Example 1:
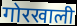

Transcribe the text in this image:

गोरखाली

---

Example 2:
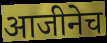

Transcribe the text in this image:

आजीनेच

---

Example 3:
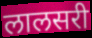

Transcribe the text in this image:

लालसरी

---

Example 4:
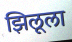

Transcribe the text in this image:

झिलूला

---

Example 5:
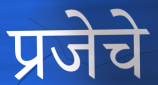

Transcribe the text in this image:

प्रजेचे